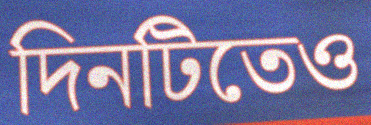
দিনটিতেও